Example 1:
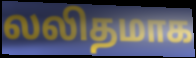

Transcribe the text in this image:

லலிதமாக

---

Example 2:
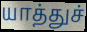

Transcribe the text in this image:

யாத்துச்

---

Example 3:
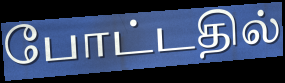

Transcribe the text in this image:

போட்டதில்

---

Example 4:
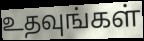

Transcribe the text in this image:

உதவுங்கள்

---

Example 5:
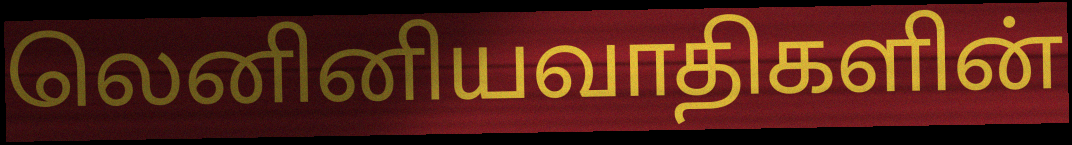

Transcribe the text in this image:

லெனினியவாதிகளின்